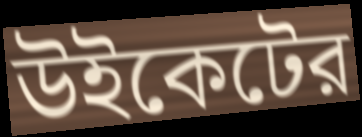
উইকেটের